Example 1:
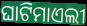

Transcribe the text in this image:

ଘାଟିମାଏଲୀ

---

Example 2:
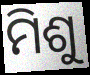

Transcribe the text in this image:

ମିଶୁ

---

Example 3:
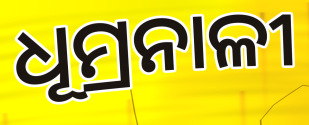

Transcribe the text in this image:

ଧୂମ୍ରନାଳୀ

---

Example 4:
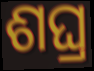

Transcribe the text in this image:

ଶଘ୍ର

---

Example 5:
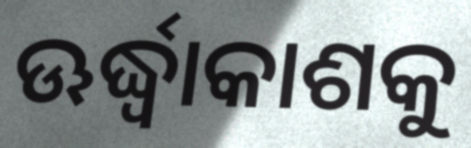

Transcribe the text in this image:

ଊର୍ଦ୍ଧ୍ୱାକାଶକୁ